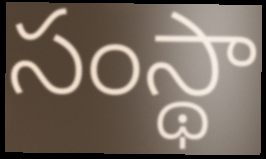
సంస్థా